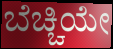
ಬೆಚ್ಚಿಯೇ